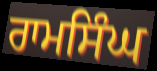
ਰਾਮਸਿੰਘ